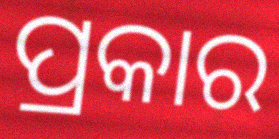
ପ୍ରକାର